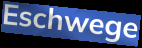
Eschwege